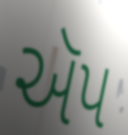
ઍપ